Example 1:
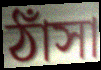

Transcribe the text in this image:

ঠাঁসা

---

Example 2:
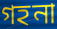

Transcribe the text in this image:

গহনা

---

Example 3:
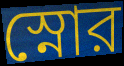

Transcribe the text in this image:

স্নোর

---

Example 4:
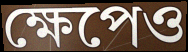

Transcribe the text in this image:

ক্ষেপেও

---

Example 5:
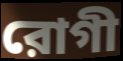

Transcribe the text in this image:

রোগী